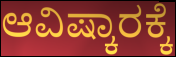
ಆವಿಷ್ಕಾರಕ್ಕೆ